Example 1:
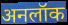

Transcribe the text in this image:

अनलॉक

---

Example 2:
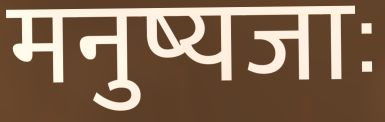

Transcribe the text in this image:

मनुष्यजाः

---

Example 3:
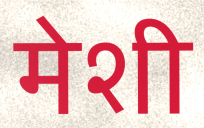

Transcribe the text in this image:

मेशी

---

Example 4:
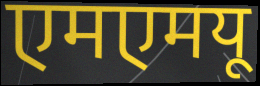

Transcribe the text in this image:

एमएमयू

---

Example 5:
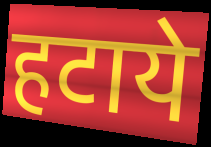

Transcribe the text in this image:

हटाये